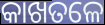
କାଖତଳେ